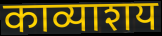
काव्याशय